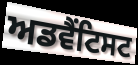
ਅਡਵੈਂਟਿਸਟ